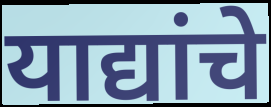
याद्यांचे